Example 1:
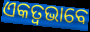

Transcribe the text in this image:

ଏକତ୍ଵଭାବେ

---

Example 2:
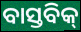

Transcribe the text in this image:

ବାସ୍ତବିକ୍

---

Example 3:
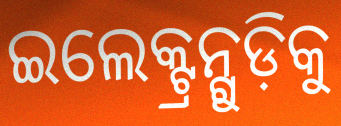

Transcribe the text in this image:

ଇଲେକ୍ଟ୍ରନ୍ଗୁଡ଼ିକୁ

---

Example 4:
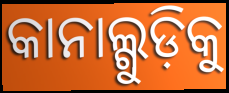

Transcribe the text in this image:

କାନାଲ୍ଗୁଡ଼ିକୁ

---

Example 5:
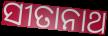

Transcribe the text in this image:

ସୀତାନାଥ